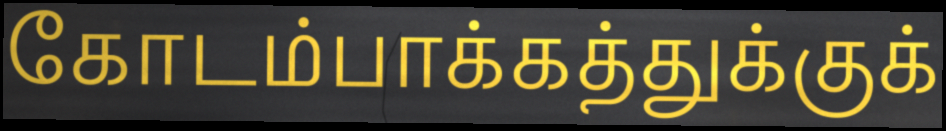
கோடம்பாக்கத்துக்குக்